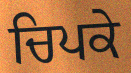
ਚਿਪਕੇ